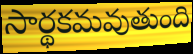
సార్థకమవుతుంది